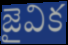
జైవిక